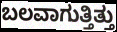
ಬಲವಾಗುತ್ತಿತ್ತು